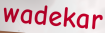
wadekar